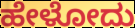
ಹೇಳೋದು